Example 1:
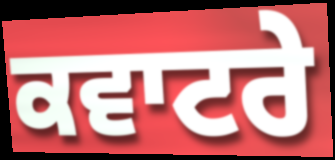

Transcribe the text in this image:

ਕਵਾਟਰੇ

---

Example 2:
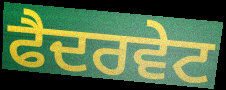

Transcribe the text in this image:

ਫੈਦਰਵੇਟ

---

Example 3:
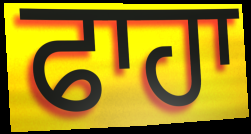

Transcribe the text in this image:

ਫਾਹਾ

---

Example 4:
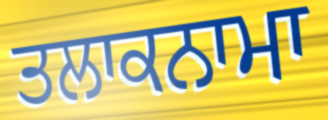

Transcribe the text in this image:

ਤਲਾਕਨਾਮਾ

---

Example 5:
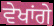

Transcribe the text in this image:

ਵੇਖਾਂਗੇ